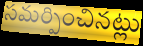
సమర్పించినట్లు